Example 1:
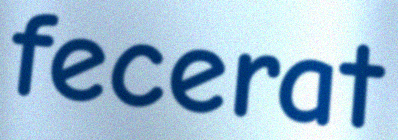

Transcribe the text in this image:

fecerat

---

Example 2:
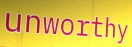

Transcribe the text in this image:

unworthy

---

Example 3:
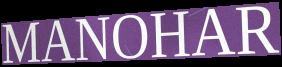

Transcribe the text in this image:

MANOHAR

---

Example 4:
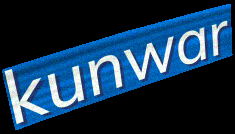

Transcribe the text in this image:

kunwar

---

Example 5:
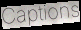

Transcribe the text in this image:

Captions